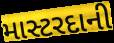
માસ્ટરદાની